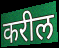
करील